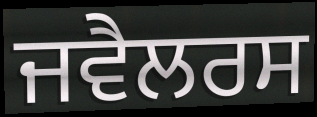
ਜਵੈਲਰਸ